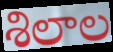
శిలాల